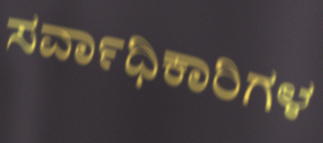
ಸರ್ವಾಧಿಕಾರಿಗಳ